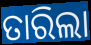
ତାରିଲା